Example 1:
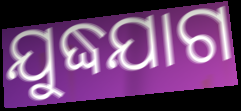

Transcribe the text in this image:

ଯୁଦ୍ଧଯାଗ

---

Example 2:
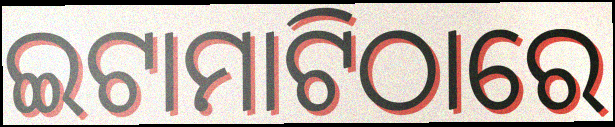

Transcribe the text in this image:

ଇଟାମାଟିଠାରେ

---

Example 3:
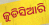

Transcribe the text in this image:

ଜୁଡିସିଆରି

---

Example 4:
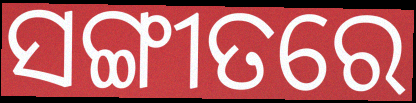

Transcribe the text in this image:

ସଙ୍ଗୀତରେ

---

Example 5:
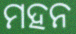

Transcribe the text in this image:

ମହନ